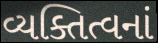
વ્યક્તિત્વનાં